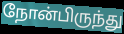
நோன்பிருந்து